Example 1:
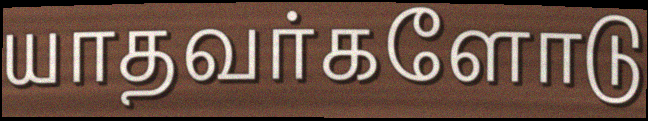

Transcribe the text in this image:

யாதவர்களோடு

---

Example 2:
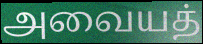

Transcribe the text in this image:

அவையத்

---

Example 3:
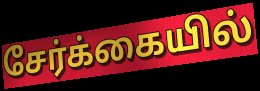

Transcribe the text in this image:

சேர்க்கையில்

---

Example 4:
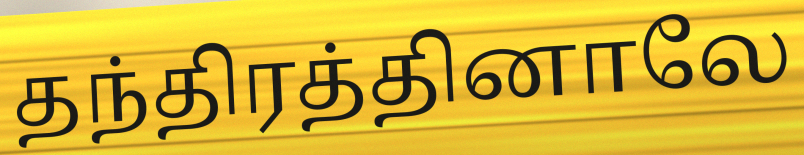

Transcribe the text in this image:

தந்திரத்தினாலே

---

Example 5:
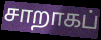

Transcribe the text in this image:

சாறாகப்